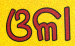
ଓଳା